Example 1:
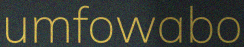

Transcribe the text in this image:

umfowabo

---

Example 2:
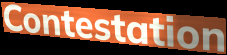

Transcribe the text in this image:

Contestation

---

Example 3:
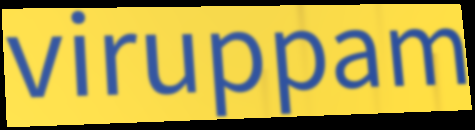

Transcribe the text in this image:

viruppam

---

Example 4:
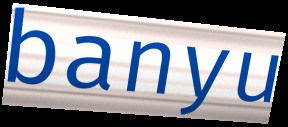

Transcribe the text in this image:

banyu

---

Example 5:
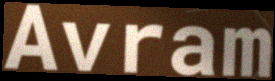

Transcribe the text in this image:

Avram